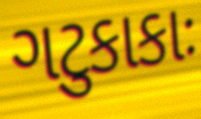
ગટુકાકાઃ